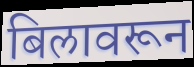
बिलावरून